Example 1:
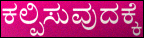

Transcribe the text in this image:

ಕಲ್ಪಿಸುವುದಕ್ಕೆ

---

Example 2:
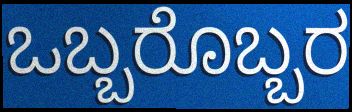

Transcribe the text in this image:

ಒಬ್ಬರೊಬ್ಬರ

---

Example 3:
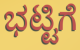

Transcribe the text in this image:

ಭಟ್ಟಿಗೆ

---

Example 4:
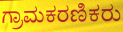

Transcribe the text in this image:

ಗ್ರಾಮಕರಣಿಕರು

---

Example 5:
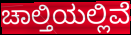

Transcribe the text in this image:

ಚಾಲ್ತಿಯಲ್ಲಿವೆ